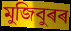
মুজিবুৰৰ